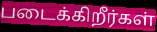
படைக்கிறீர்கள்